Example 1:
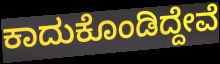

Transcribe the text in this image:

ಕಾದುಕೊಂಡಿದ್ದೇವೆ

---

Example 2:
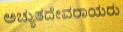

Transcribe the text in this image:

ಅಚ್ಯುತದೇವರಾಯರು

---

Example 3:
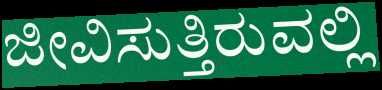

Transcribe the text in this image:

ಜೀವಿಸುತ್ತಿರುವಲ್ಲಿ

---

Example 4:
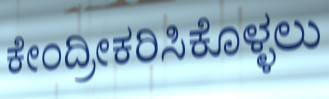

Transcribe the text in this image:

ಕೇಂದ್ರೀಕರಿಸಿಕೊಳ್ಳಲು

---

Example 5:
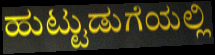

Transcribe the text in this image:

ಹುಟ್ಟುಡುಗೆಯಲ್ಲಿ